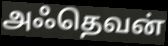
அஃதெவன்